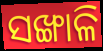
ସଙ୍ଖାଳି